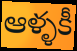
ఆళ్ళకీ